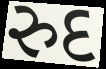
રુદ